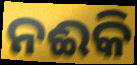
ନଈକି